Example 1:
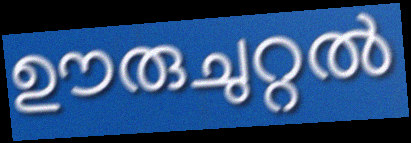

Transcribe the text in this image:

ഊരുചുറ്റൽ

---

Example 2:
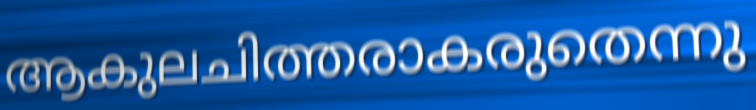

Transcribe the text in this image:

ആകുലചിത്തരാകരുതെന്നു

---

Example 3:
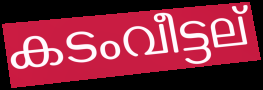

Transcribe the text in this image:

കടംവീട്ടല്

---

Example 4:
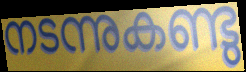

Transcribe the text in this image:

നടന്നുകണ്ടു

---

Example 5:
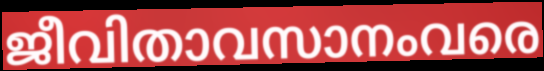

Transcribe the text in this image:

ജീവിതാവസാനംവരെ